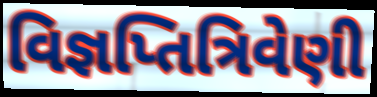
વિજ્ઞપ્તિત્રિવેણી